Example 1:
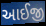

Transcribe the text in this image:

આઈજી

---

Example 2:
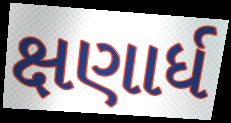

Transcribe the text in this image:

ક્ષણાર્ધ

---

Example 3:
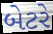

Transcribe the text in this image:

બેટરે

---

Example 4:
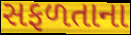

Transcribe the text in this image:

સફળતાના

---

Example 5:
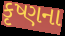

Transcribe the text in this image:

કૃષ્ણના